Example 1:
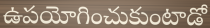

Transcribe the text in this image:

ఉపయోగించుకుంటాడో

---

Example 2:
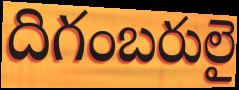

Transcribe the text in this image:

దిగంబరులై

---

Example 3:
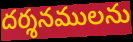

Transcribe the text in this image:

దర్శనములను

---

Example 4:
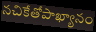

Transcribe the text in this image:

నచికేతోపాఖ్యానం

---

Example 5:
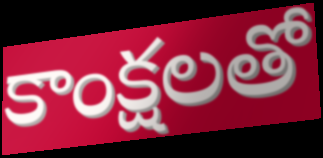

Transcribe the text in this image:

కాంక్షలతో